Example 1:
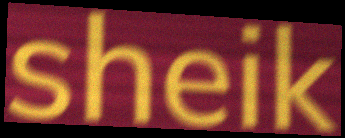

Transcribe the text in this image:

sheik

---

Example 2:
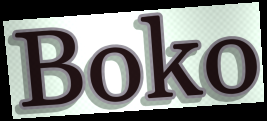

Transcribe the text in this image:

Boko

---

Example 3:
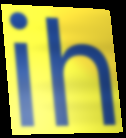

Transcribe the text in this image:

ih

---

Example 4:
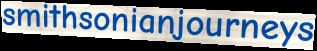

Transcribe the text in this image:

smithsonianjourneys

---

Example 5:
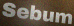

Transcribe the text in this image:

Sebum